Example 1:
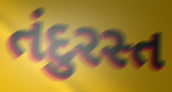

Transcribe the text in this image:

તંદુરસ્ત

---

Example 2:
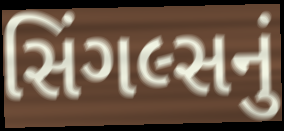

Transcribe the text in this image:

સિંગલ્સનું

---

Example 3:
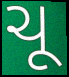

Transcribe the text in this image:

ચૂ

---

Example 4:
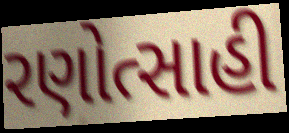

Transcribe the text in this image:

રણોત્સાહી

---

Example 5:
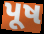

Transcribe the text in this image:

પૂષ